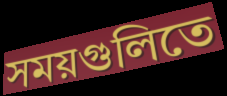
সময়গুলিতে